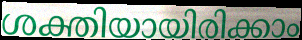
ശക്തിയായിരിക്കാം